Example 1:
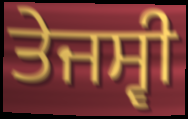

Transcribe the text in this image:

ਤੇਜਸ੍ਵੀ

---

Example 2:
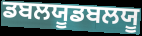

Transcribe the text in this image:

ਡਬਲਯੂਡਬਲਯੂ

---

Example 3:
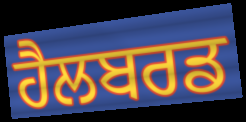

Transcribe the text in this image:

ਹੈਲਬਰਡ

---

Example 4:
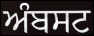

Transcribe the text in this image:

ਅੰਬਸਟ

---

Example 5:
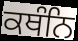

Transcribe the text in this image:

ਕਥੰਨਿ